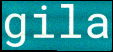
gila